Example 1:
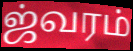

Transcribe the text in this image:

ஜ்வரம்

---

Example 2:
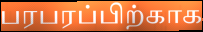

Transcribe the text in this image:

பரபரப்பிற்காக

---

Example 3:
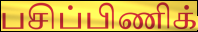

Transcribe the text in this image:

பசிப்பிணிக்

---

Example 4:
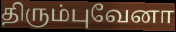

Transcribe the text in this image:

திரும்புவேனா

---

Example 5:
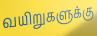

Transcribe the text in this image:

வயிறுகளுக்கு